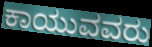
ಕಾಯುವವರು